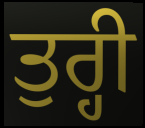
ਤੁਰ੍ਹੀ